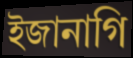
ইজানাগি